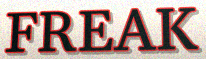
FREAK